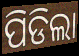
ପିଡିଲା